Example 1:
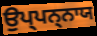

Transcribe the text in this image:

ਉਪ੍ਪਨ੍ਨਾਯ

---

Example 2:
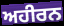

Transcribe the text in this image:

ਅਹੀਰਨ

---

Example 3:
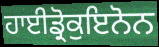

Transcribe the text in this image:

ਹਾਈਡ੍ਰੋਕੁਇਨੋਨ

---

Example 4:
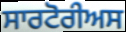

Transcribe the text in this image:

ਸਾਰਟੋਰੀਅਸ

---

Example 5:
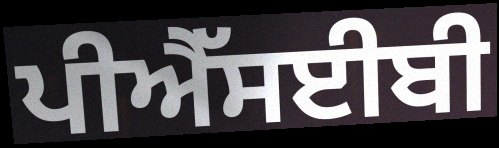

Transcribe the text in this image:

ਪੀਐੱਸਈਬੀ